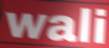
wali